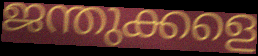
ജന്തുക്കളെ